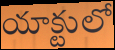
యాక్టులో